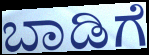
ಬಾಡಿಗೆ